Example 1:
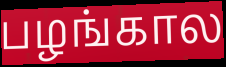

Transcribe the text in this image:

பழங்கால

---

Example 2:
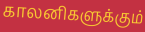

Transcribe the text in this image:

காலனிகளுக்கும்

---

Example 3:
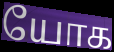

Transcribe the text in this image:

யோக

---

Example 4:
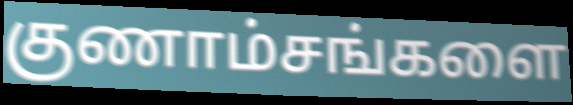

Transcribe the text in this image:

குணாம்சங்களை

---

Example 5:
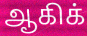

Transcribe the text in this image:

ஆகிக்